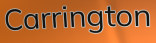
Carrington